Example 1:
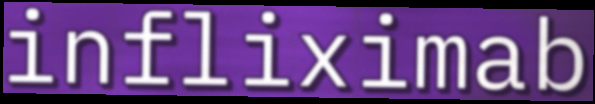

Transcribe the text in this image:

infliximab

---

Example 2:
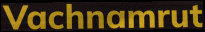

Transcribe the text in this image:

Vachnamrut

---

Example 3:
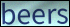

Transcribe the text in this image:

beers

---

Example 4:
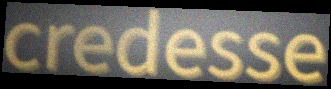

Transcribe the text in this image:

credesse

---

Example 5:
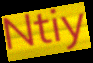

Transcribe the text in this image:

Ntiy